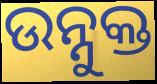
ଉନ୍ନୁକ୍ତ